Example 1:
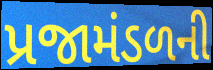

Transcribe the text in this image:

પ્રજામંડળની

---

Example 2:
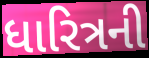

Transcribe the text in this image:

ધારિત્રની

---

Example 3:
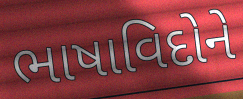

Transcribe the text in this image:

ભાષાવિદોને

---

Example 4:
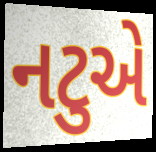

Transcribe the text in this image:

નટુએ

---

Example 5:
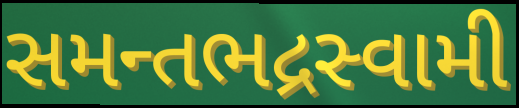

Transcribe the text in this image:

સમન્તભદ્રસ્વામી